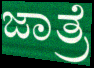
ಜಾತ್ರೆ